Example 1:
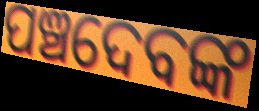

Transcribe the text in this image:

ପଞ୍ଚଦେବଙ୍କ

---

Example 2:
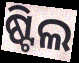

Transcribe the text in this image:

ଷ୍ଟିଲ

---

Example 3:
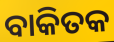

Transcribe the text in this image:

ବାକିତକ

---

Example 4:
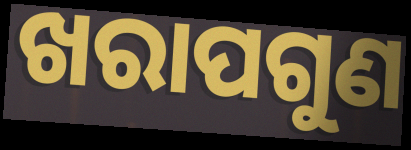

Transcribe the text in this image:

ଖରାପଗୁଣ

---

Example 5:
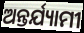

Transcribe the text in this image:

ଅନ୍ତର୍ଯ୍ୟାମୀ